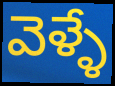
వెళ్ళే